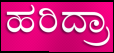
ಹರಿದ್ರಾ